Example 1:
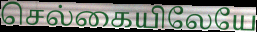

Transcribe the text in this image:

செல்கையிலேயே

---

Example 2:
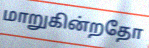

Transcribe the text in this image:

மாறுகின்றதோ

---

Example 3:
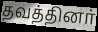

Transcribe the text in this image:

தவத்தினர்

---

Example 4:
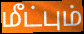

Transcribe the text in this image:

மீட்பும்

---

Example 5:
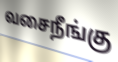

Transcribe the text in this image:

வசைநீங்கு